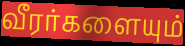
வீரர்களையும்